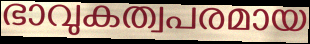
ഭാവുകത്വപരമായ